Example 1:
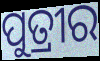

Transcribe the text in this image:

ପୁତ୍ରୀର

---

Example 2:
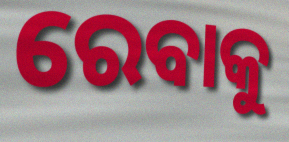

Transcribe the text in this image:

ରେବାକୁ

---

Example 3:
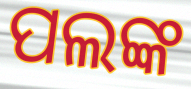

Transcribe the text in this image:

ପଲଙ୍କ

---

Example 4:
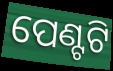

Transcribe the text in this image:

ପେଣ୍ଟଟି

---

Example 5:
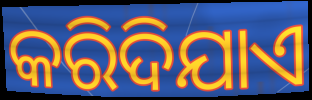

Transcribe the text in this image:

କରିଦିଯାଏ